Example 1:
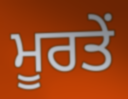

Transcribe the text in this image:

ਮੂਰਤੇਂ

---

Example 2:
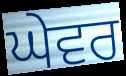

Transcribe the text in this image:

ਘੇਵਰ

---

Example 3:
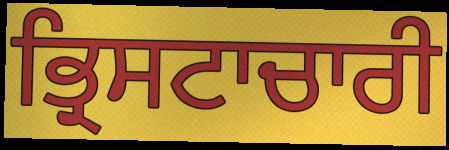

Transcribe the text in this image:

ਭ੍ਰਿਸਟਾਚਾਰੀ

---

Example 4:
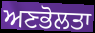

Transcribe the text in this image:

ਅਣਭੋਲਤਾ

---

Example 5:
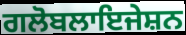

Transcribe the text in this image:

ਗਲੋਬਲਾਇਜੇਸ਼ਨ